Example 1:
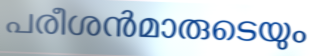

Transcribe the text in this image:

പരീശൻമാരുടെയും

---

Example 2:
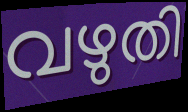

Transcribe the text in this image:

വഴുതി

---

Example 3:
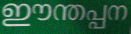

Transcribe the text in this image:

ഈന്തപ്പന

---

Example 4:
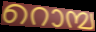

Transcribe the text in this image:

റൊമ്പ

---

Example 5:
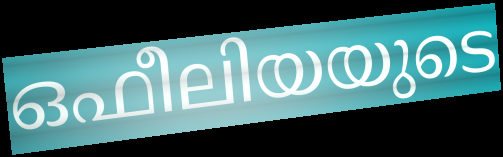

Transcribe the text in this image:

ഒഫീലിയയുടെ